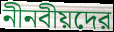
নীনবীয়দের